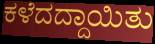
ಕಳೆದದ್ದಾಯಿತು